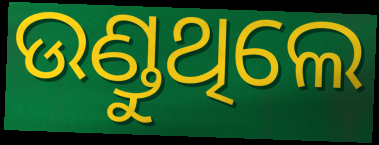
ଉଣ୍ଡୁଥିଲେ